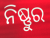
ନିଷ୍ଣୁର